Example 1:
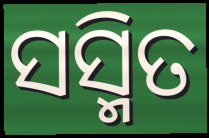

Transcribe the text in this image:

ସସ୍ମିତ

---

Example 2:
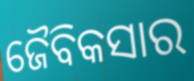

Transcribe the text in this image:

ଜୈବିକସାର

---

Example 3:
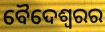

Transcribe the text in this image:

ବୈଦେଶ୍ୱରର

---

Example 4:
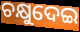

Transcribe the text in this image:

ଚକ୍ଷୁଦେଇ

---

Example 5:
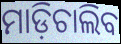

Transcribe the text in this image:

ମାଡ଼ିଚାଲିବ